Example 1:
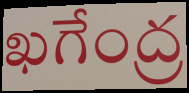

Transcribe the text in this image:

ఖగేంద్ర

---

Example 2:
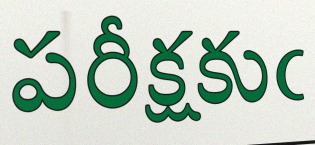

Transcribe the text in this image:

పరీక్షకుఁ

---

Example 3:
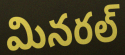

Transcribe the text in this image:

మినరల్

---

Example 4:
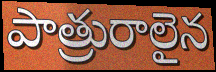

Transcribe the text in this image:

పాత్రురాలైన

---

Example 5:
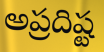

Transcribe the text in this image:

అప్రదిష్ట